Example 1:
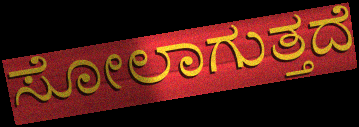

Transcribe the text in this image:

ಸೋಲಾಗುತ್ತದೆ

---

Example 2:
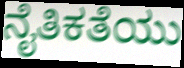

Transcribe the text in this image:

ನೈತಿಕತೆಯು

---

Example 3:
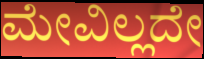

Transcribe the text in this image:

ಮೇವಿಲ್ಲದೇ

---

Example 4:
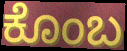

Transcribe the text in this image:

ಕೊಂಬ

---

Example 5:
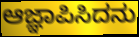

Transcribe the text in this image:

ಆಜ್ಞಾಪಿಸಿದನು